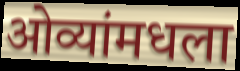
ओव्यांमधला